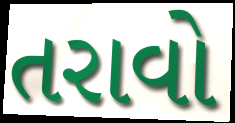
તરાવો